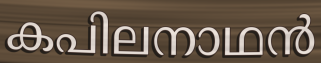
കപിലനാഥൻ